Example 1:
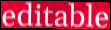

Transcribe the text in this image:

editable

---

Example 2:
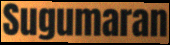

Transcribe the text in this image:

Sugumaran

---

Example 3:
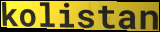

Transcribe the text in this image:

kolistan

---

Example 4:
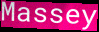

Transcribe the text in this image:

Massey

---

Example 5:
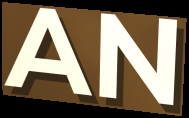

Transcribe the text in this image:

AN